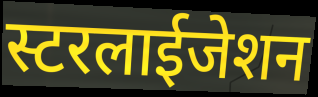
स्टरलाईजेशन